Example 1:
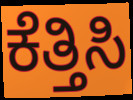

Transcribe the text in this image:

ಕೆತ್ತಿಸಿ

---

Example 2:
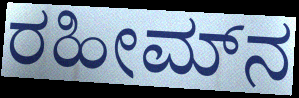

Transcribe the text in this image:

ರಹೀಮ್‌ನ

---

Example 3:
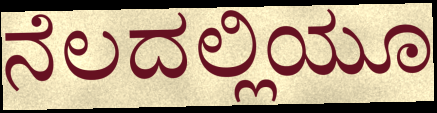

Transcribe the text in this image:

ನೆಲದಲ್ಲಿಯೂ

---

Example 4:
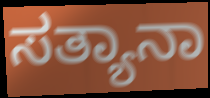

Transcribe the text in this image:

ಸತ್ಯಾನಾ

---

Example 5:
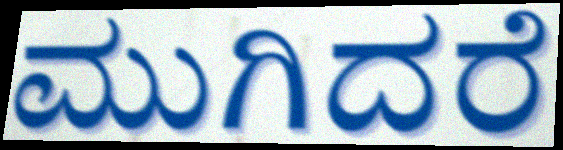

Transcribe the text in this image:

ಮುಗಿದರೆ